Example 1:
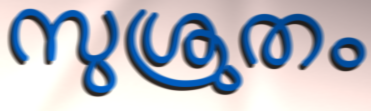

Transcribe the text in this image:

സുശ്രുതം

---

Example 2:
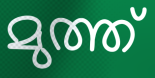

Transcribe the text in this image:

മുത്ത്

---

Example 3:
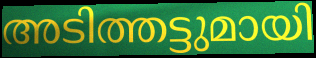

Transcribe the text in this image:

അടിത്തട്ടുമായി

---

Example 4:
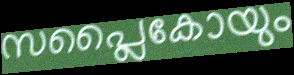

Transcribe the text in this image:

സപ്ലൈകോയും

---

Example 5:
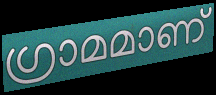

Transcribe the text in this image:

ഗ്രാമമാണ്